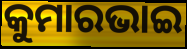
କୁମାରଭାଇ